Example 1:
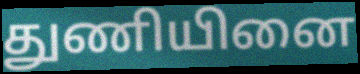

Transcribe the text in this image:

துணியினை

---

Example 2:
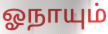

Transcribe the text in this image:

ஓநாயும்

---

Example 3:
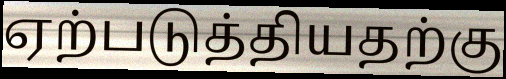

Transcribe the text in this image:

ஏற்படுத்தியதற்கு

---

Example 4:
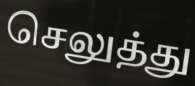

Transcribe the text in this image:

செலுத்து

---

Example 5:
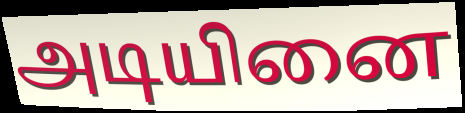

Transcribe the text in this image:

அடியினை